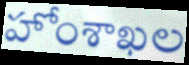
హోంశాఖల